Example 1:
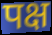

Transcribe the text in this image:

पक्ष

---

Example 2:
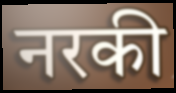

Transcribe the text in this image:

नरकी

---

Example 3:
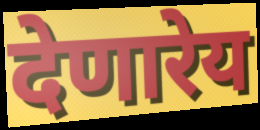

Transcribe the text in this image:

देणारेय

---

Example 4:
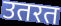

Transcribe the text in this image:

उतरत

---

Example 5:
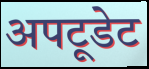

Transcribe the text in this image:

अपटूडेट